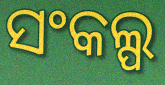
ସଂକଲ୍ପ